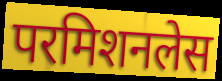
परमिशनलेस